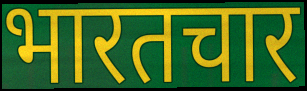
भारतचार